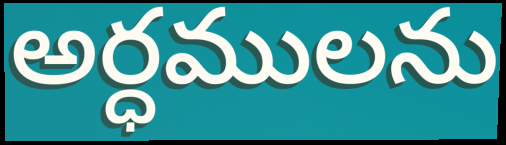
అర్ధములను